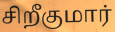
சிறீகுமார்